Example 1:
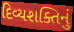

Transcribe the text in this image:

દિવ્યશક્તિનું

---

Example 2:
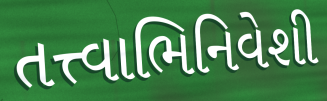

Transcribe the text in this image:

તત્ત્વાભિનિવેશી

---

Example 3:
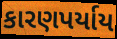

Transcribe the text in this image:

કારણપર્યાય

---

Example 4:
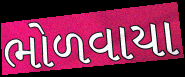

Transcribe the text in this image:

ભોળવાયા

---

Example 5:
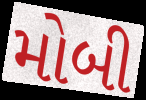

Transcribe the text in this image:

મોબી